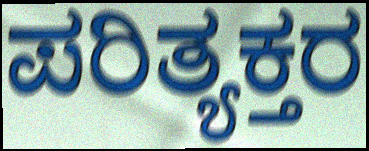
ಪರಿತ್ಯಕ್ತರ